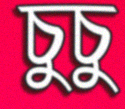
চুচু